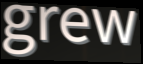
grew